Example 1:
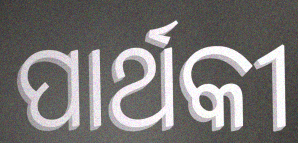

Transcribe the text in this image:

ପାର୍ଥକୀ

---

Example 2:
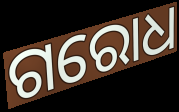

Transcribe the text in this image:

ଗରୋଧ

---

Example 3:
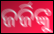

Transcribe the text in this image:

ଜର୍ଜିଙ୍କୁ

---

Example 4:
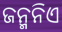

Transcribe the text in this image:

ଜନ୍ମନିଏ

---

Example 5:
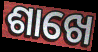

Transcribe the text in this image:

ଶାଖେ